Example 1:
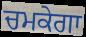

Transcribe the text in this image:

ਚਮਕੇਗਾ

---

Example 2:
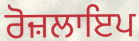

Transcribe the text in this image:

ਰੋਜ਼ਲਾਇਪ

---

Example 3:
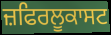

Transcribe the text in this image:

ਜ਼ਫਿਰਲੂਕਾਸਟ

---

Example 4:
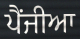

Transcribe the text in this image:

ਪੈਂਜੀਆ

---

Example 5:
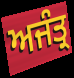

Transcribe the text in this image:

ਅਜੰਤ੍ਰ